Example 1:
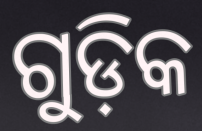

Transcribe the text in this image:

ଗୁଡ଼ିକ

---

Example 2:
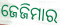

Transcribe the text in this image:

ଜେଜିମାର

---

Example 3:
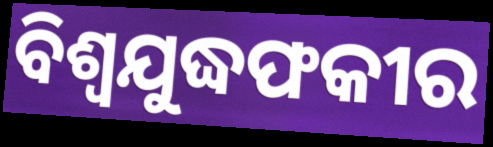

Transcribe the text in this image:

ବିଶ୍ୱଯୁଦ୍ଧଫକୀର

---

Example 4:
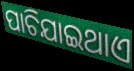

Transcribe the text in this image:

ପାଚିଯାଇଥାଏ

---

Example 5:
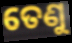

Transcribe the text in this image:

ତେଣୁ